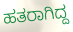
ಹತರಾಗಿದ್ದ